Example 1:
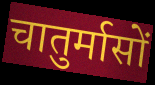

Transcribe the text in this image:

चातुर्मासों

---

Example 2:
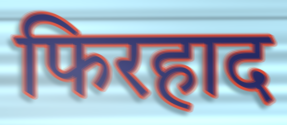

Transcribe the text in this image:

फिरहाद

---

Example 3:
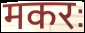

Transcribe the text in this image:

मकरः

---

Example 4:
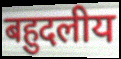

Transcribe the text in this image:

बहुदलीय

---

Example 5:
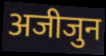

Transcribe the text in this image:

अजीजुन